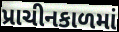
પ્રાચીનકાળમાં